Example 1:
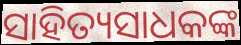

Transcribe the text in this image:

ସାହିତ୍ୟସାଧକଙ୍କ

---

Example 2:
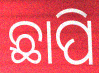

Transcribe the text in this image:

ଛାପି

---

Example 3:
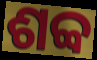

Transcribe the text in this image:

ଶବ୍ବ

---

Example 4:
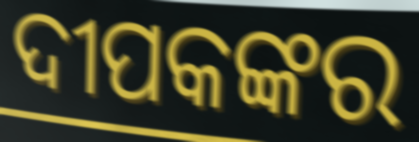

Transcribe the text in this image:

ଦୀପକଙ୍କର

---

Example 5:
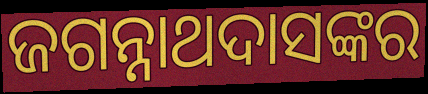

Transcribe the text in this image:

ଜଗନ୍ନାଥଦାସଙ୍କର